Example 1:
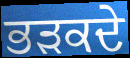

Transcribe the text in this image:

ਭੜਕਦੇ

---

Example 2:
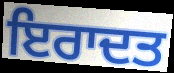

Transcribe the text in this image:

ਇਰਾਦਤ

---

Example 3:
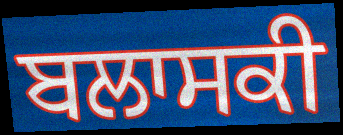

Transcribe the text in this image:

ਬਲਾਸਕੀ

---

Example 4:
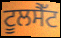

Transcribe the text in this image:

ਟੂਲਸੈੱਟ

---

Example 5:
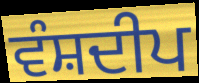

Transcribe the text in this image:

ਵੰਸ਼ਦੀਪ